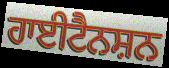
ਹਾਈਟੈਨਸ਼ਨ